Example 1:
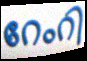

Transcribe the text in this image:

റേംറി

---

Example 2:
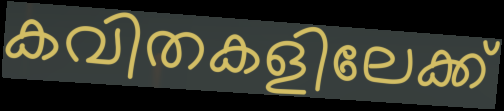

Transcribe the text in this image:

കവിതകളിലേക്ക്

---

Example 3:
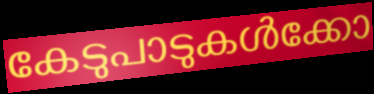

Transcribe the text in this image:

കേടുപാടുകൾക്കോ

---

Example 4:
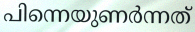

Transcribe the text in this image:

പിന്നെയുണർന്നത്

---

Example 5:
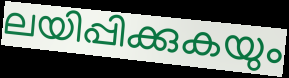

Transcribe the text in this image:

ലയിപ്പിക്കുകയും